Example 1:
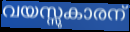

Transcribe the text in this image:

വയസ്സുകാരന്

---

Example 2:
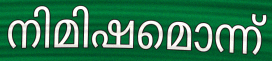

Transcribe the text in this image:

നിമിഷമൊന്ന്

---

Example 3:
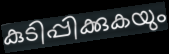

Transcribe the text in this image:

കുടിപ്പിക്കുകയും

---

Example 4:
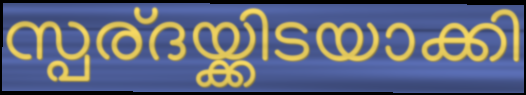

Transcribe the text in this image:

സ്പര്ദയ്ക്കിടയാക്കി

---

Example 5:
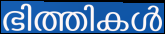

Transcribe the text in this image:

ഭിത്തികൾ